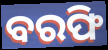
ବରଫି